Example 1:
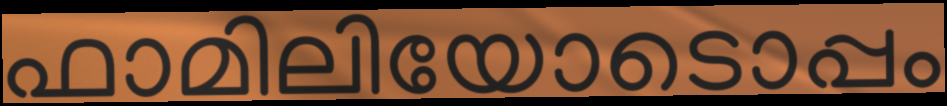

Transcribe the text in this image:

ഫാമിലിയോടൊപ്പം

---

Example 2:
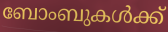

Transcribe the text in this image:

ബോംബുകൾക്ക്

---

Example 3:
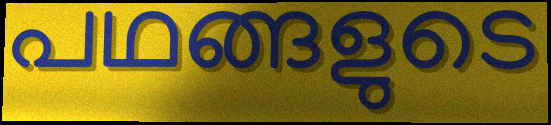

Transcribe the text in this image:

പഥങ്ങളുടെ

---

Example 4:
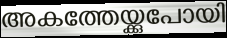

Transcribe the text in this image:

അകത്തേയ്ക്കുപോയി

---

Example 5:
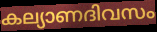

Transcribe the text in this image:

കല്യാണദിവസം